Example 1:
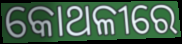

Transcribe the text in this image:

କୋଥଳୀରେ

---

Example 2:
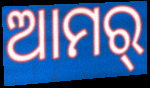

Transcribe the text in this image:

ଆମର୍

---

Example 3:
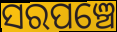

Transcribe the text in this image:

ସରପଞ୍ଚେ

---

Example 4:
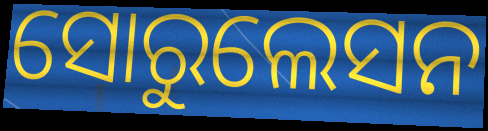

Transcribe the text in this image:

ସୋରୁଲେସନ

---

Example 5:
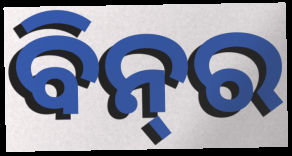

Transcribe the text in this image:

ବିନ୍‍ର